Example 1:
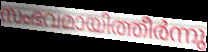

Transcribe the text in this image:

സംഭവമായിത്തീർന്നു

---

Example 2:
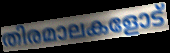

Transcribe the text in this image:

തിരമാലകളോട്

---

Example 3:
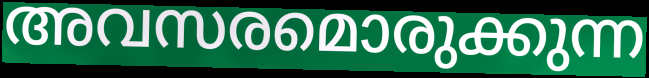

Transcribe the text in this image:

അവസരമൊരുക്കുന്ന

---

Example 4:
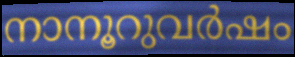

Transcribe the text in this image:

നാനൂറുവർഷം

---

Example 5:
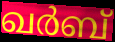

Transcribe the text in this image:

ഖർബ്